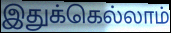
இதுக்கெல்லாம்